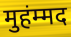
मुहंम्मद